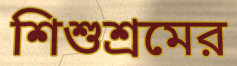
শিশুশ্রমের